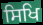
ਸਿਖਿ